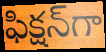
ఫిక్షన్‌గా